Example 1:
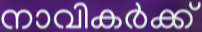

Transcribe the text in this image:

നാവികർക്ക്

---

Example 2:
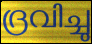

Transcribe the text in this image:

ദ്രവിച്ചു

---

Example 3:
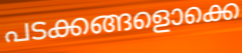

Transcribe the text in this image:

പടക്കങ്ങളൊക്കെ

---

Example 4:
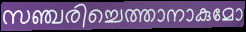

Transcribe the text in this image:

സഞ്ചരിച്ചെത്താനാകുമോ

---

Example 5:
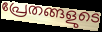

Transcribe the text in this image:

പ്രേതങ്ങളുടെ